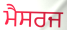
ਮੈਸਰਜ